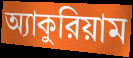
অ্যাকুরিয়াম